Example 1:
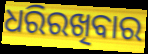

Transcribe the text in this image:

ଧରିରଖିବାର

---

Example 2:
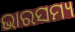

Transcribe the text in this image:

ଭାରସମ୍ୟ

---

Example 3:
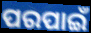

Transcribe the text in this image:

ପରପାଇଁ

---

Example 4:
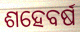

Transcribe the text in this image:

ଶହେବର୍ଷ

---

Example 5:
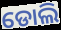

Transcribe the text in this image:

ଡୋଲି